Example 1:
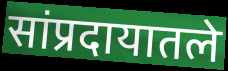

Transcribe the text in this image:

सांप्रदायातले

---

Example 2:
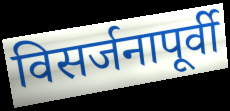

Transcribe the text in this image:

विसर्जनापूर्वी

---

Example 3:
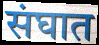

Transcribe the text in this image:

संघात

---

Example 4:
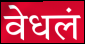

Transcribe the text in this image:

वेधलं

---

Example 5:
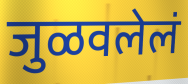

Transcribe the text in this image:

जुळवलेलं